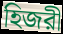
হিজরী